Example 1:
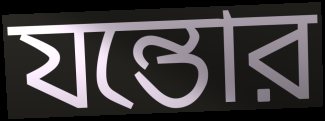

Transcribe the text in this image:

যন্তোর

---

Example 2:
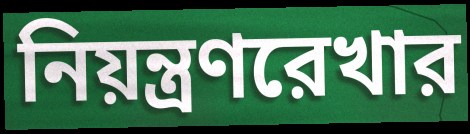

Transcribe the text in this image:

নিয়ন্ত্রণরেখার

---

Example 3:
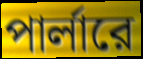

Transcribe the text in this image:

পার্লারে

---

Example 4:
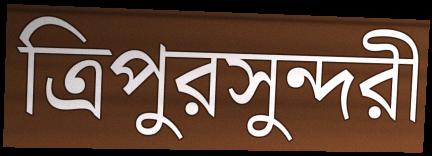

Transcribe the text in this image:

ত্রিপুরসুন্দরী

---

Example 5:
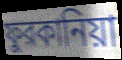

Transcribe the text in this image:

ফুরকানিয়া